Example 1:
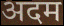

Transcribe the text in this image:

अदम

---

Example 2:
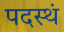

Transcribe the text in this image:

पदस्थं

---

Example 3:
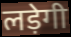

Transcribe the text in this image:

लड़ेगी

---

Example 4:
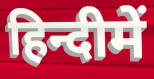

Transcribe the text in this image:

हिन्दीमें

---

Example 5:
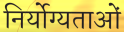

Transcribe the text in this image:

निर्योग्यताओं